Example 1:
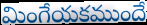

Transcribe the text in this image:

మింగేయకముందే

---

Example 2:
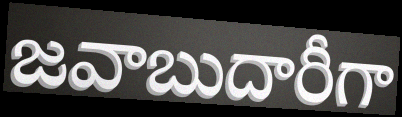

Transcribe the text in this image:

జవాబుదారీగా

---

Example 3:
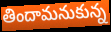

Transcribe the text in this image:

తిందామనుకున్న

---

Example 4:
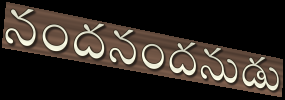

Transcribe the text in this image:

నందనందనుడు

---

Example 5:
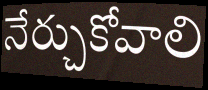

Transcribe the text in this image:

నేర్చుకోవాలి